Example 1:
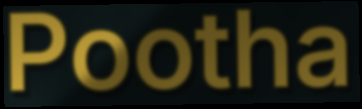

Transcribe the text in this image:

Pootha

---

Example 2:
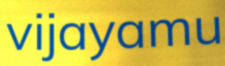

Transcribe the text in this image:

vijayamu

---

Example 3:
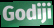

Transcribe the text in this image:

Godiji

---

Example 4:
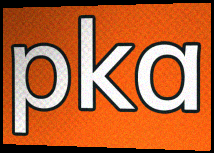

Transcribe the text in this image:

pka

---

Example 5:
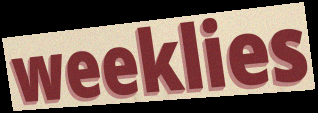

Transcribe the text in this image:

weeklies